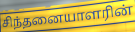
சிந்தனையாளரின்